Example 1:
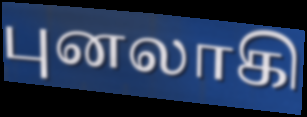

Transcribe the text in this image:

புனலாகி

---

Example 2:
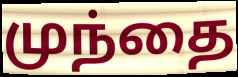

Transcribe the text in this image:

முந்தை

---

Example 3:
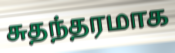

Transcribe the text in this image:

சுதந்தரமாக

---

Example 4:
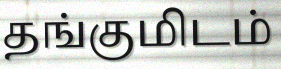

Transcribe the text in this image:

தங்குமிடம்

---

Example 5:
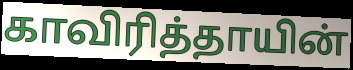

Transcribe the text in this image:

காவிரித்தாயின்